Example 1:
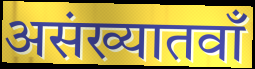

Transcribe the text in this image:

असंख्यातवाँ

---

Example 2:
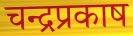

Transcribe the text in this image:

चन्द्रप्रकाष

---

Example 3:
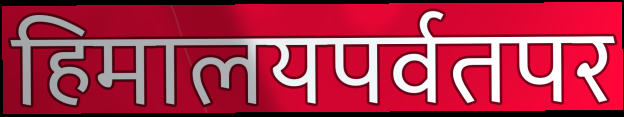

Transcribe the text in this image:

हिमालयपर्वतपर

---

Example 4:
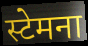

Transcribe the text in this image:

स्टेमना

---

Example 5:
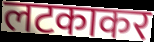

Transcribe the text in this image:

लटकाकर